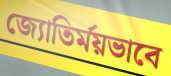
জ্যোতির্ময়ভাবে